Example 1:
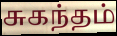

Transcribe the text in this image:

சுகந்தம்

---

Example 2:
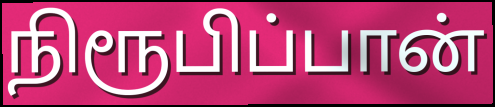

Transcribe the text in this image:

நிரூபிப்பான்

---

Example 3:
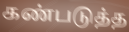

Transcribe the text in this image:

கண்படுத்த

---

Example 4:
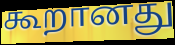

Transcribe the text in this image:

கூறானது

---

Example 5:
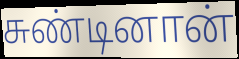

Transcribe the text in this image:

சுண்டினான்